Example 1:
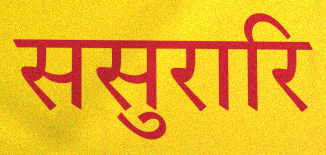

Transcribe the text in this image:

ससुरारि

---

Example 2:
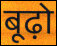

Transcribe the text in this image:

बूढ़ो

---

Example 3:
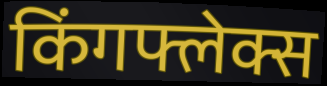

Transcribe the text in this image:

किंगफ्लेक्स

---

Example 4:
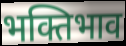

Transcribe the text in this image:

भक्तिभाव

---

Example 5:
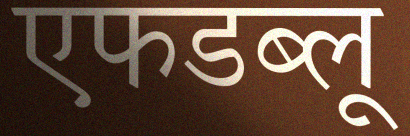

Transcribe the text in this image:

एफडब्लू